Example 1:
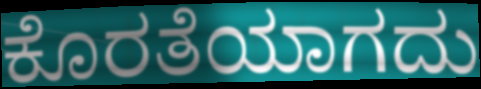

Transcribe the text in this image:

ಕೊರತೆಯಾಗದು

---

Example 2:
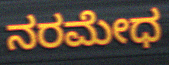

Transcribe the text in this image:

ನರಮೇಧ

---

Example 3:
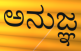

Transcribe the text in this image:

ಅನುಜ್ಞ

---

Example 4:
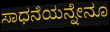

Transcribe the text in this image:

ಸಾಧನೆಯನ್ನೇನೂ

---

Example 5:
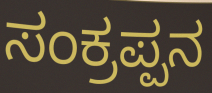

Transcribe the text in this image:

ಸಂಕ್ರಪ್ಪನ